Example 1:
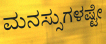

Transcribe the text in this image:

ಮನಸ್ಸುಗಳಷ್ಟೇ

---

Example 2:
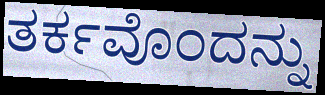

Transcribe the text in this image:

ತರ್ಕವೊಂದನ್ನು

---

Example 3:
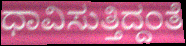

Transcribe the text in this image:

ಧಾವಿಸುತ್ತಿದ್ದಂತೆ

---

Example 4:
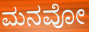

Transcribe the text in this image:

ಮನವೋ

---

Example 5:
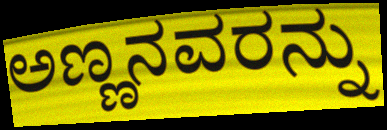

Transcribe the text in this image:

ಅಣ್ಣನವರನ್ನು